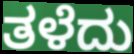
ತಳೆದು